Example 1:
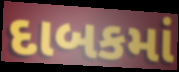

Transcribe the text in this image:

દાબકમાં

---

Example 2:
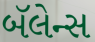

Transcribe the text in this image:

બૅલેન્સ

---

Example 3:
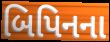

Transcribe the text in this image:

બિપિનના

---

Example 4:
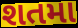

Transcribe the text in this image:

શતમા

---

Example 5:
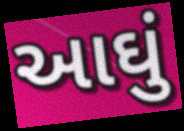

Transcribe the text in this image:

આઘું